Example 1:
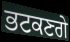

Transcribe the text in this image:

ਭਟਕਣਗੇ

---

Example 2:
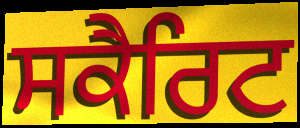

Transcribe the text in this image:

ਸਕੈਰਿਟ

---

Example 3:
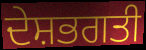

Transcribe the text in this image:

ਦੇਸ਼ਭਗਤੀ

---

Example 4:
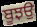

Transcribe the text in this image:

ਬੂਝਉ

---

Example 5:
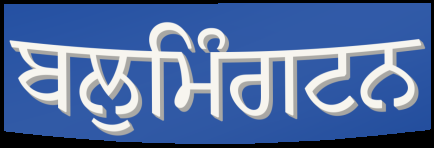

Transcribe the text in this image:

ਬਲੁਮਿੰਗਟਨ